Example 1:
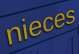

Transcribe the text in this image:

nieces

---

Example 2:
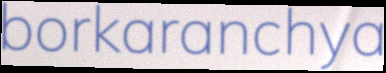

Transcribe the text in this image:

borkaranchya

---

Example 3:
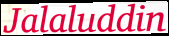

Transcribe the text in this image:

Jalaluddin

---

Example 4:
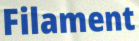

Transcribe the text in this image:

Filament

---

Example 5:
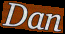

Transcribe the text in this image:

Dan